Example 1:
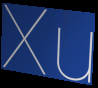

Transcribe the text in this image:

Xu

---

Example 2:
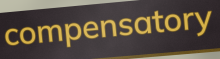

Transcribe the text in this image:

compensatory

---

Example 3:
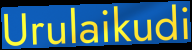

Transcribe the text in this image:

Urulaikudi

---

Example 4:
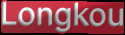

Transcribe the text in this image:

Longkou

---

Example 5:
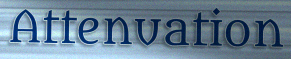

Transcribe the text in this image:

Attenuation